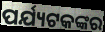
ପର୍ଯ୍ୟଟକଙ୍କର